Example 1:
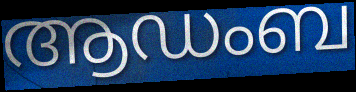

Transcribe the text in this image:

ആഡംബ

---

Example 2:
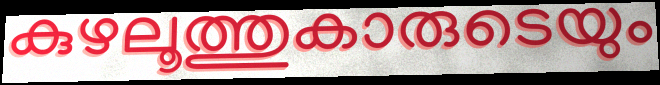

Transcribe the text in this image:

കുഴലൂത്തുകാരുടെയും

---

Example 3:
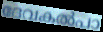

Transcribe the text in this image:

ദേവകൽപാ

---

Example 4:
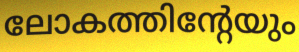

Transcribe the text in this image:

ലോകത്തിന്റേയും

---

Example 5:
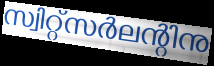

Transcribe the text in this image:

സ്വിറ്റ്സർലന്റിനു